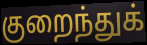
குறைந்துக்